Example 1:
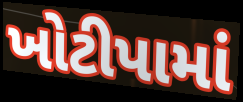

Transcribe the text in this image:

ખોટીપામાં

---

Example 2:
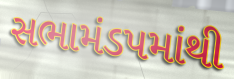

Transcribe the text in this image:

સભામંડપમાંથી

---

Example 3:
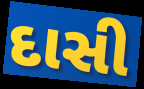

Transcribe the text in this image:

દાસી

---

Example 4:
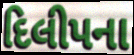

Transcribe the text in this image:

દિલીપના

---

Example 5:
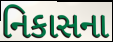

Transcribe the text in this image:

નિકાસના